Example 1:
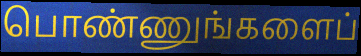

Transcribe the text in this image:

பொண்ணுங்களைப்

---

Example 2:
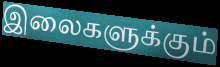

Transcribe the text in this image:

இலைகளுக்கும்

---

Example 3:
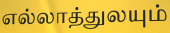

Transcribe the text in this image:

எல்லாத்துலயும்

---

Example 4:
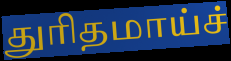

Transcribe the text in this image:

துரிதமாய்ச்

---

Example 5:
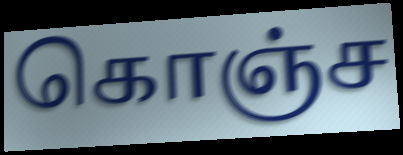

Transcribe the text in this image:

கொஞ்ச